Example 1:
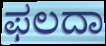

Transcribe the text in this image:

ಫಲದಾ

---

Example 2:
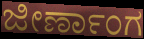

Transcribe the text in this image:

ಜೀರ್ಣಾಂಗ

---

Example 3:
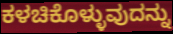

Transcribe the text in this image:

ಕಳಚಿಕೊಳ್ಳುವುದನ್ನು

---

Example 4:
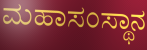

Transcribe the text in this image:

ಮಹಾಸಂಸ್ಥಾನ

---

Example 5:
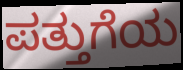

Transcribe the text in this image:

ಪತ್ತುಗೆಯ